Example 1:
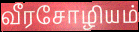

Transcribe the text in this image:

வீரசோழியம்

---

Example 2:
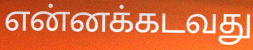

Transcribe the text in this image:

என்னக்கடவது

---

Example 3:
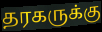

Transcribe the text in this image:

தரகருக்கு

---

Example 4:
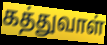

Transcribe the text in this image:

கத்துவாள்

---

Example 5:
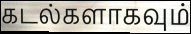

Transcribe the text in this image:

கடல்களாகவும்